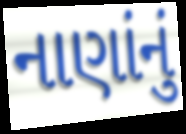
નાણાંનું